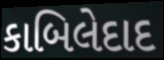
કાબિલેદાદ